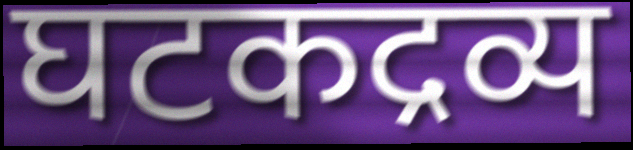
घटकद्रव्य